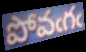
పోవఁగఁ